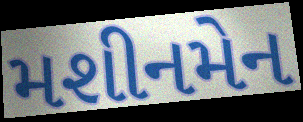
મશીનમેન